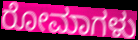
ರೋಮಾಗಳು